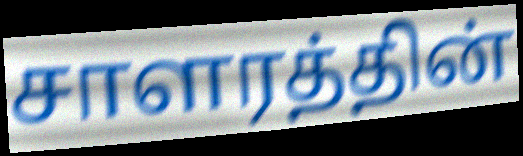
சாளரத்தின்